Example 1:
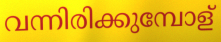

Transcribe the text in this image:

വന്നിരിക്കുമ്പോള്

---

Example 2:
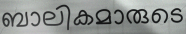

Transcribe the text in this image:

ബാലികമാരുടെ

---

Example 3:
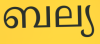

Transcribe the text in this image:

ബല്യ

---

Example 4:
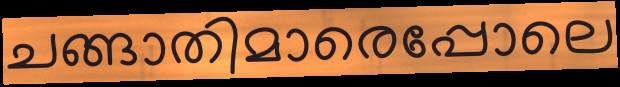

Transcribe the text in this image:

ചങ്ങാതിമാരെപ്പോലെ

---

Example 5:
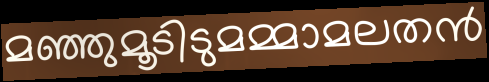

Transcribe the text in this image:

മഞ്ഞുമൂടിടുമമ്മാമലതൻ